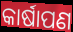
କାର୍ଷାପଣ